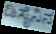
ಡಿಸೈನಿನ